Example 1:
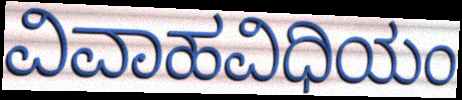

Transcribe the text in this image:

ವಿವಾಹವಿಧಿಯಂ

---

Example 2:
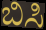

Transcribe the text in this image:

ಬಿಸಿ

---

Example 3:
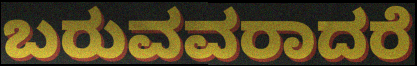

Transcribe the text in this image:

ಬರುವವರಾದರೆ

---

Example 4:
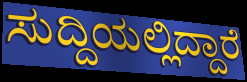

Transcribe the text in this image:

ಸುದ್ದಿಯಲ್ಲಿದ್ದಾರೆ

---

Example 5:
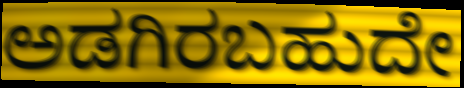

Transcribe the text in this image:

ಅಡಗಿರಬಹುದೇ